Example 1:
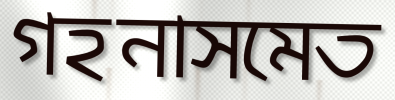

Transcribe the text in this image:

গহনাসমেত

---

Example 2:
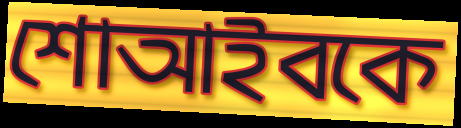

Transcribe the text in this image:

শোআইবকে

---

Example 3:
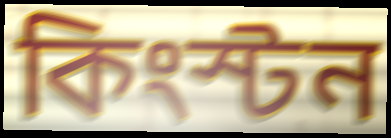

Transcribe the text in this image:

কিংস্টন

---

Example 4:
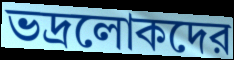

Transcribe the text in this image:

ভদ্রলোকদের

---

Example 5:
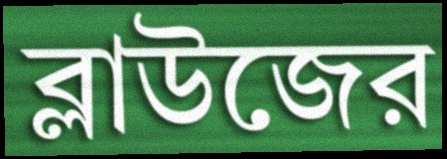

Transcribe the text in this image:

ব্লাউজের